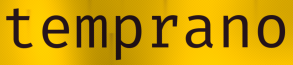
temprano